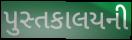
પુસ્તકાલયની